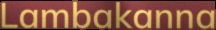
Lambakanna